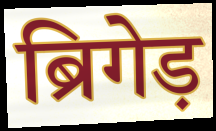
ब्रिगेड़